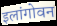
इलांगोवन